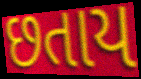
છતાય